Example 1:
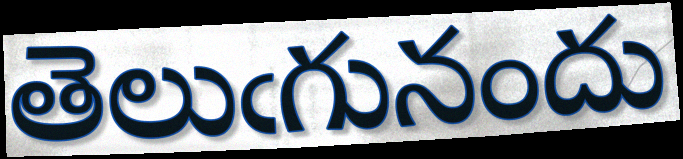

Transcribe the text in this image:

తెలుఁగునందు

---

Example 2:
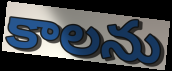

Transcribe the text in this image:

కాలను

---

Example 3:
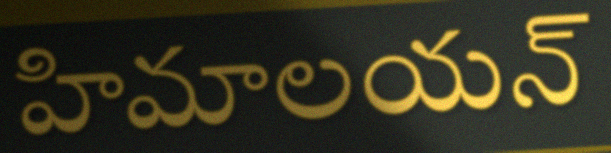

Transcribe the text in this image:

హిమాలయన్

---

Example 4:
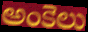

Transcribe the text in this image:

అంకెలు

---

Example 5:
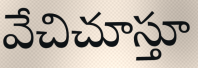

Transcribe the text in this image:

వేచిచూస్తూ